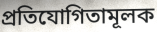
প্ৰতিযোগিতামূলক